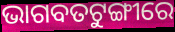
ଭାଗବତଟୁଙ୍ଗୀରେ